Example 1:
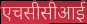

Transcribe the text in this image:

एचसीसीआई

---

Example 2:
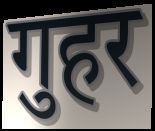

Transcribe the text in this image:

गुहर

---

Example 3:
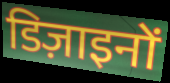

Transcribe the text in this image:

डिज़ाइनों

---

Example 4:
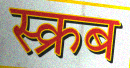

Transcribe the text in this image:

स्क्रब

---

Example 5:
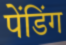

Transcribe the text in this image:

पेंडिंग